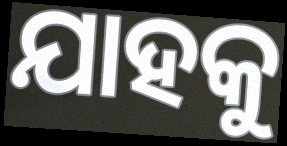
ଯାହକୁ